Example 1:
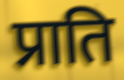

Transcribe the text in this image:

प्राति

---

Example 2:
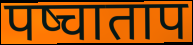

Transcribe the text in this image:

पष्चाताप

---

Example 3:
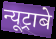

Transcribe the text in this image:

न्यूट्राबे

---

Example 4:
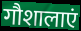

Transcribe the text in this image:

गौशालाएं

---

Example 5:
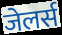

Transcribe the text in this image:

जेलर्स